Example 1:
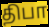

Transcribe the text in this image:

திபா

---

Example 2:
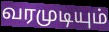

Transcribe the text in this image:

வரமுடியும்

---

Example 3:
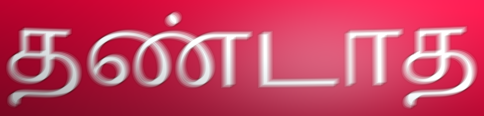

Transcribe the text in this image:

தண்டாத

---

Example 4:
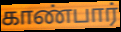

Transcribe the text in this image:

காண்பார்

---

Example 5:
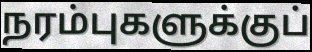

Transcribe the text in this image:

நரம்புகளுக்குப்